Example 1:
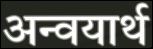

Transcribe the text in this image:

अन्वयार्थ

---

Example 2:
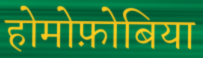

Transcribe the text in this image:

होमोफ़ोबिया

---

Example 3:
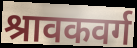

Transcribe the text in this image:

श्रावकवर्ग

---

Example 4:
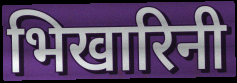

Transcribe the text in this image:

भिखारिनी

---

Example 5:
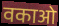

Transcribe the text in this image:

वकाओ